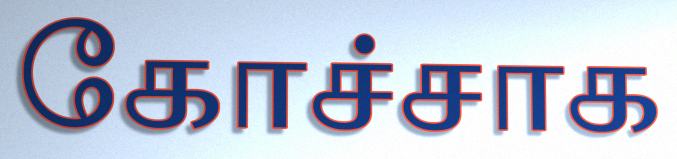
கோச்சாக